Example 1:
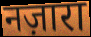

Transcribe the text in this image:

नज़ारा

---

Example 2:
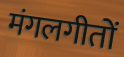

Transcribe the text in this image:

मंगलगीतों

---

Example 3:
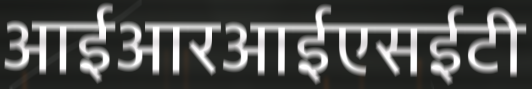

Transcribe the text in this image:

आईआरआईएसईटी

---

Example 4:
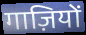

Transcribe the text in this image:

गाज़ियों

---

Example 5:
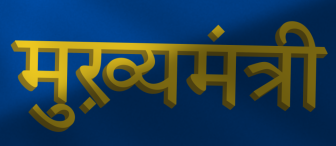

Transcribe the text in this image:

मुख़्यमंत्री